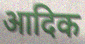
आदिक